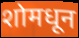
शोमधून